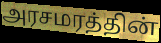
அரசமரத்தின்